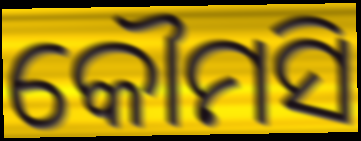
କୌମସି